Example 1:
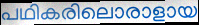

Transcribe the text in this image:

പഥികരിലൊരാളായ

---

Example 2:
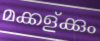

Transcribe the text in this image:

മക്കള്ക്കും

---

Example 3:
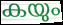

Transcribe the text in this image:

കയും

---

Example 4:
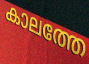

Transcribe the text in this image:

കാലത്തേ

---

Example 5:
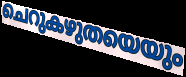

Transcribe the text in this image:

ചെറുകഴുതയെയും